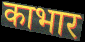
काभार